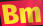
Bm